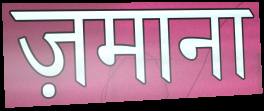
ज़माना